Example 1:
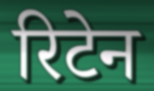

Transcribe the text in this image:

रिटेन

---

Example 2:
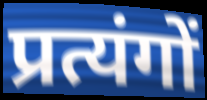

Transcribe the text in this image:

प्रत्यंगों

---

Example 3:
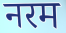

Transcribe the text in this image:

नरम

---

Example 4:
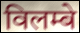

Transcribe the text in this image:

विलम्बे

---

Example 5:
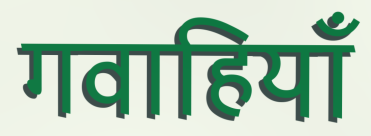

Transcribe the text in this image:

गवाहियाँ